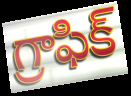
గ్రాఫిక్